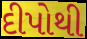
દીપોથી